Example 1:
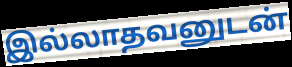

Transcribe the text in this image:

இல்லாதவனுடன்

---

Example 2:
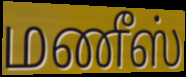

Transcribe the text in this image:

மணீஸ்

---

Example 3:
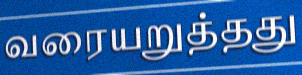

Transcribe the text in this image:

வரையறுத்தது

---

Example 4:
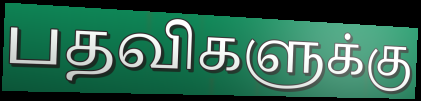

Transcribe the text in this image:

பதவிகளுக்கு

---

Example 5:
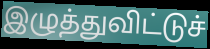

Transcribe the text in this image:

இழுத்துவிட்டுச்